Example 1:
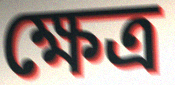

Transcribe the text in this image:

ক্ষেত্ৰ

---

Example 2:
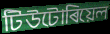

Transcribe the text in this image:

টিউটোৰিয়েল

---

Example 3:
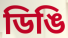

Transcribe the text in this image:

ডিঙি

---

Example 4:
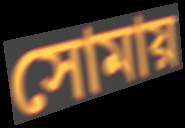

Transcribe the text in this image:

সোমায়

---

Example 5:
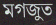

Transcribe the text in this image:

মগজুত